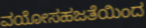
ವಯೋಸಹಜತೆಯಿಂದ